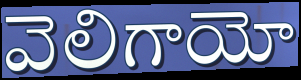
వెలిగాయో